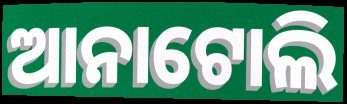
ଆନାଟୋଲି